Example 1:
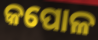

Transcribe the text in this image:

କପୋଳ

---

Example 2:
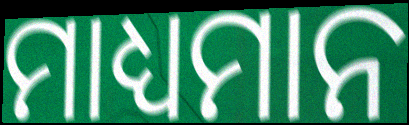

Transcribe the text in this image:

ମାଧ୍ଯମାନ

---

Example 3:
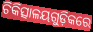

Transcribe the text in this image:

ଚିକିତ୍ସାଳୟଗୁଡ଼ିକରେ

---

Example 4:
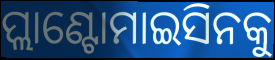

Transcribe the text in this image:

ପ୍ଲାଣ୍ଟୋମାଇସିନକୁ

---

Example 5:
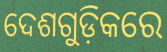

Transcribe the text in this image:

ଦେଶଗୁଡ଼ିକରେ